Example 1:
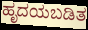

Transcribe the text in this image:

ಹೃದಯಬಡಿತ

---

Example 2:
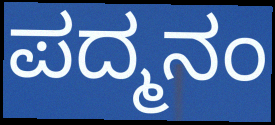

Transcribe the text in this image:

ಪದ್ಮನಂ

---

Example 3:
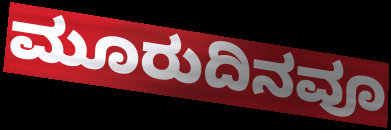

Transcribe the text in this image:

ಮೂರುದಿನವೂ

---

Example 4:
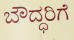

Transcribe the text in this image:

ಬೌದ್ಧರಿಗೆ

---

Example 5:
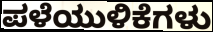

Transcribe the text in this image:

ಪಳೆಯುಳಿಕೆಗಳು